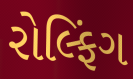
રોલ્ફિંગ